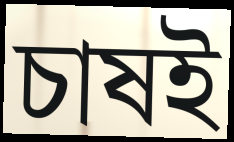
চাষই